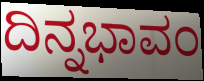
ದಿನ್ನಭಾವಂ